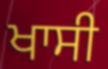
ਖਾਸੀ